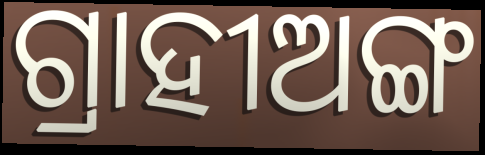
ଗ୍ରାହୀଅଙ୍ଗ